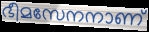
ഭീമസേനനാണ്